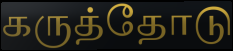
கருத்தோடு